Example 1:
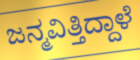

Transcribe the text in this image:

ಜನ್ಮವಿತ್ತಿದ್ದಾಳೆ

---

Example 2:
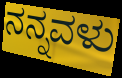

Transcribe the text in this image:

ನನ್ನವಳು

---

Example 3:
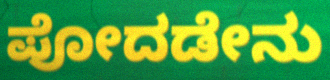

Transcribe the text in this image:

ಪೋದಡೇನು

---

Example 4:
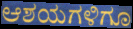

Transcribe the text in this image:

ಆಶಯಗಳಿಗೂ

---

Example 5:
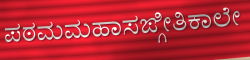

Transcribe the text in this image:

ಪಠಮಮಹಾಸಙ್ಗೀತಿಕಾಲೇ